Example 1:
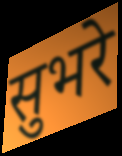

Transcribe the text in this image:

सुभरे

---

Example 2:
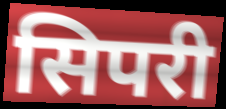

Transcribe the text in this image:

सिपरी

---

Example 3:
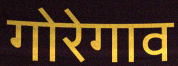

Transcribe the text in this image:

गोरेगाव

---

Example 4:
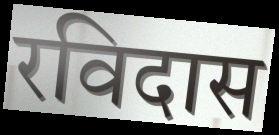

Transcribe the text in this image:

रविदास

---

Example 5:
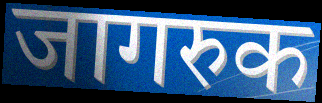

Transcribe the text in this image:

जागरुक